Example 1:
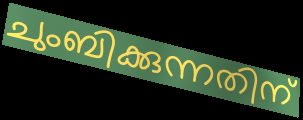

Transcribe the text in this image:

ചുംബിക്കുന്നതിന്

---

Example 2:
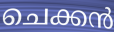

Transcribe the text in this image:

ചെക്കൻ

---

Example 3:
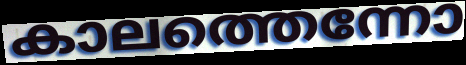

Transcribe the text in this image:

കാലത്തെന്നോ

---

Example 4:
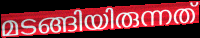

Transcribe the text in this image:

മടങ്ങിയിരുന്നത്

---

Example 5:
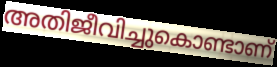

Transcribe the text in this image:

അതിജീവിച്ചുകൊണ്ടാണ്